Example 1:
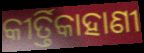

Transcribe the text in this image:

କୀର୍ତ୍ତିକାହାଣୀ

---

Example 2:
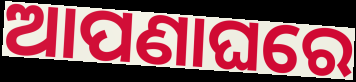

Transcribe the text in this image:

ଆପଣାଘରେ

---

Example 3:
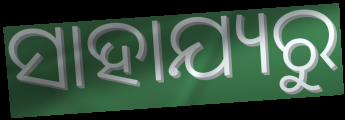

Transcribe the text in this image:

ସାହାଯ୍ୟରୁ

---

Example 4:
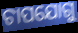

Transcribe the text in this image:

ଚାପଯୋଗୁ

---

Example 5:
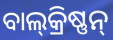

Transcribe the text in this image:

ବାଲ୍‍କ୍ରିଷ୍ଣନ୍